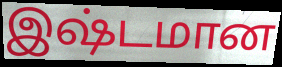
இஷ்டமான